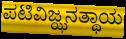
ಪಟಿವಿಜ್ಝನತ್ಥಾಯ